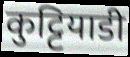
कुट्टियाडी